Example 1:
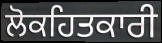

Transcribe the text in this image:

ਲੋਕਹਿਤਕਾਰੀ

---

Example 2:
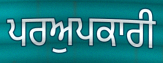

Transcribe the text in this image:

ਪਰਅੁਪਕਾਰੀ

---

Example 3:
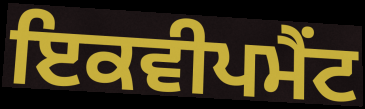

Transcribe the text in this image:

ਇਕਵੀਪਮੈਂਟ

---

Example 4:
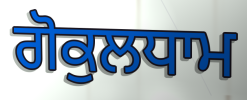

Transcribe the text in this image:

ਗੋਕੁਲਧਾਮ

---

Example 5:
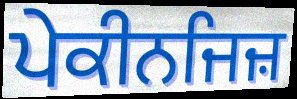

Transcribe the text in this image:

ਪੇਕੀਨਜਿਜ਼